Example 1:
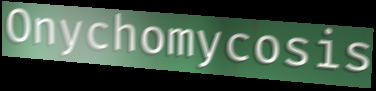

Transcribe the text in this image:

Onychomycosis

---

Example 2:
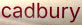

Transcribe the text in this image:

cadbury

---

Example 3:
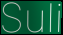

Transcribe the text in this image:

Suli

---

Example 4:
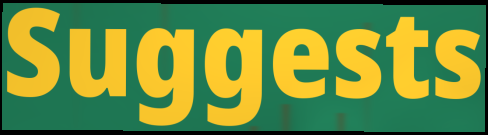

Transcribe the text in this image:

Suggests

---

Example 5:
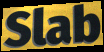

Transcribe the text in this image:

Slab